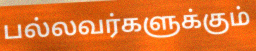
பல்லவர்களுக்கும்